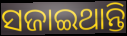
ସଜାଇଥାନ୍ତି